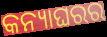
କନ୍ୟାଘରର